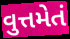
વુત્તમેતં